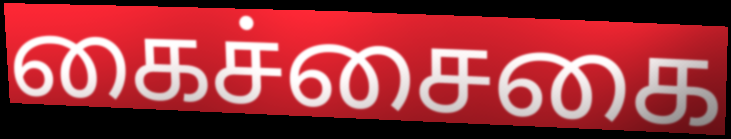
கைச்சைகை